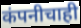
कंपनीचाही